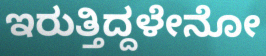
ಇರುತ್ತಿದ್ದಳೇನೋ